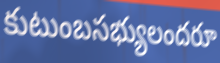
కుటుంబసభ్యులందరూ